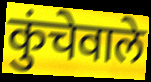
कुंचेवाले